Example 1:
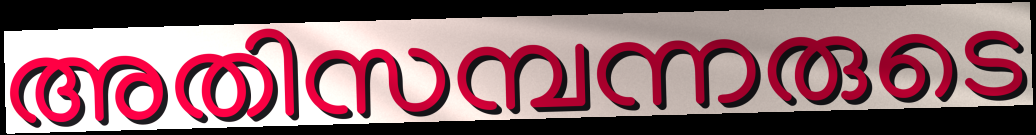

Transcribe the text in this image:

അതിസമ്പന്നരുടെ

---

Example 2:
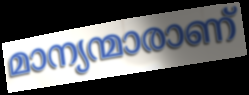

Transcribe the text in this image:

മാന്യന്മാരാണ്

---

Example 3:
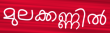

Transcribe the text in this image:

മുലക്കണ്ണിൽ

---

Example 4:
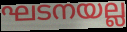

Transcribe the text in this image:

ഘടനയല്ല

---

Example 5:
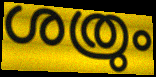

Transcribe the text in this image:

ശത്രും